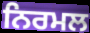
ਨਿਰਮਲ